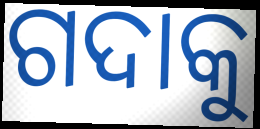
ଗଦାକୁ